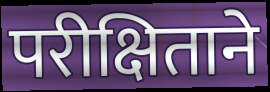
परीक्षिताने